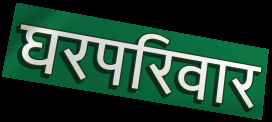
घरपरिवार